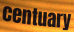
centuary